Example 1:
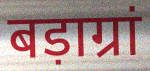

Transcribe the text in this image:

बड़ाग्रां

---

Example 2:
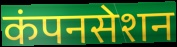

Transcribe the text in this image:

कंपनसेशन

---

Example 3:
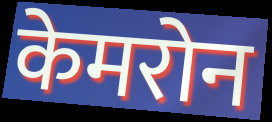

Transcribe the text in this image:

केमरोन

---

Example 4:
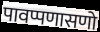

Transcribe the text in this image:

पावप्पणासणो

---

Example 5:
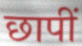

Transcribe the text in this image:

छापीं